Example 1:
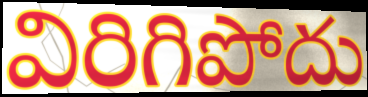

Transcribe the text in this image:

విరిగిపోదు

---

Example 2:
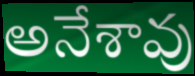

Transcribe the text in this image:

అనేశావు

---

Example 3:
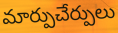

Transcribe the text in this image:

మార్పుచేర్పులు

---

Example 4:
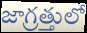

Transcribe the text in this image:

జాగ్రత్తులో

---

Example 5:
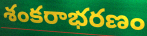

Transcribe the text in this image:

శంకరాభరణం